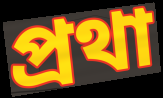
প্রথা